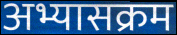
अभ्यासक्रम